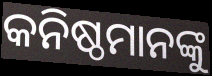
କନିଷ୍ଠମାନଙ୍କୁ